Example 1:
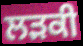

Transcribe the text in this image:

ਲੜਕੀ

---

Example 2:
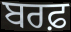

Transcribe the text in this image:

ਬਰਫ਼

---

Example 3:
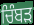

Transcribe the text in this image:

ਚਿੰਬੜ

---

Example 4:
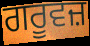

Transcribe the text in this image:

ਗਰੂਵਜ਼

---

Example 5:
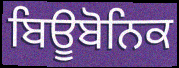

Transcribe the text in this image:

ਬਿਊਬੋਨਿਕ